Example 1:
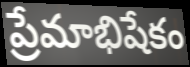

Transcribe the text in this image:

ప్రేమాభిషేకం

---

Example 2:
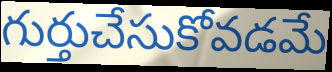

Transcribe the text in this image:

గుర్తుచేసుకోవడమే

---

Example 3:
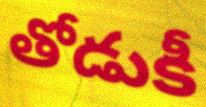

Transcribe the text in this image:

తోడుకీ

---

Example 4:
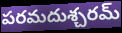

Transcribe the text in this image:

పరమదుశ్చరమ్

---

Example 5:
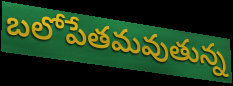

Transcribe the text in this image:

బలోపేతమవుతున్న